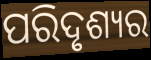
ପରିଦୃଶ୍ୟର